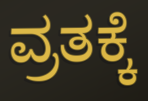
ವ್ರತಕ್ಕೆ